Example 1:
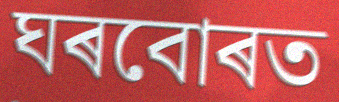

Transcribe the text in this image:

ঘৰবোৰত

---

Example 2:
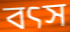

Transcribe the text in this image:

বৎস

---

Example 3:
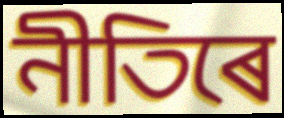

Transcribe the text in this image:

নীতিৰে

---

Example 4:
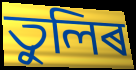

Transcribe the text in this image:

তুলিৰ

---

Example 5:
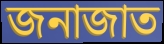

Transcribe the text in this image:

জনাজাত